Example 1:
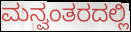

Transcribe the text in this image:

ಮನ್ವಂತರದಲ್ಲಿ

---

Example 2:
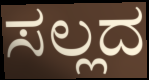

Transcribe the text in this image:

ಸಲ್ಲದ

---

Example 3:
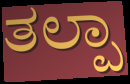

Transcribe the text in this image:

ತಲ್ಪಾ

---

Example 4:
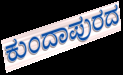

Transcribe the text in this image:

ಕುಂದಾಪುರದ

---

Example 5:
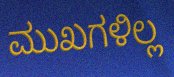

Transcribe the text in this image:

ಮುಖಗಳಿಲ್ಲ